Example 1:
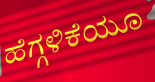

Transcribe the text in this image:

ಹೆಗ್ಗಳಿಕೆಯೂ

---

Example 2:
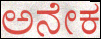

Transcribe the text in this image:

ಅನೇಕ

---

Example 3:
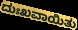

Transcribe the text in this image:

ದುಃಖವಾಯಿತು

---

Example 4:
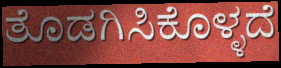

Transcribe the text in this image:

ತೊಡಗಿಸಿಕೊಳ್ಳದೆ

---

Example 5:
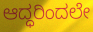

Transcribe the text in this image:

ಆದ್ಧರಿಂದಲೇ